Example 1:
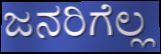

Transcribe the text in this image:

ಜನರಿಗೆಲ್ಲ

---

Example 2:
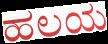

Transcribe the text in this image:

ಹಲಯ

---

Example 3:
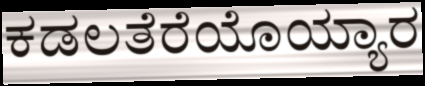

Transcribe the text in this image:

ಕಡಲತೆರೆಯೊಯ್ಯಾರ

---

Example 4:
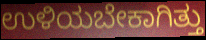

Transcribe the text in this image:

ಉಳಿಯಬೇಕಾಗಿತ್ತು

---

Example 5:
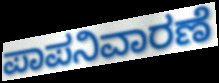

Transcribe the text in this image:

ಪಾಪನಿವಾರಣೆ